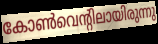
കോൺവെന്റിലായിരുന്നു